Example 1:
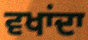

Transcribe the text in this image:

ਵਖਾਂਦਾ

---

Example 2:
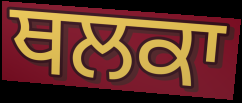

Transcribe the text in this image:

ਥਲਕਾ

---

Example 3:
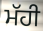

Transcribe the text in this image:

ਮੱਹੀ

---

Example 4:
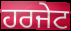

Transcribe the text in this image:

ਹਰਜੇਟ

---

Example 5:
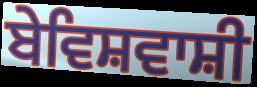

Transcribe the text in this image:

ਬੇਵਿਸ਼ਵਾਸ਼ੀ